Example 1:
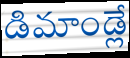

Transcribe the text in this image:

డిమాండ్లే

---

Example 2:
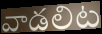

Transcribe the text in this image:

వాడలిట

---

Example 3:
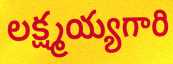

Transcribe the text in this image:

లక్ష్మయ్యగారి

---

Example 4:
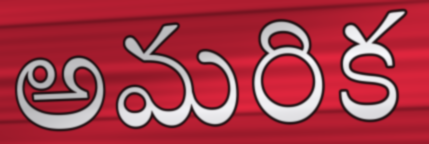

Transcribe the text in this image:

అమరిక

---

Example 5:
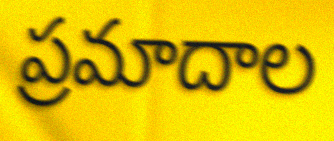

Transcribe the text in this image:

ప్రమాదాల